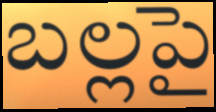
బల్లపై